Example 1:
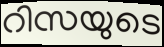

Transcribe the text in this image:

റിസയുടെ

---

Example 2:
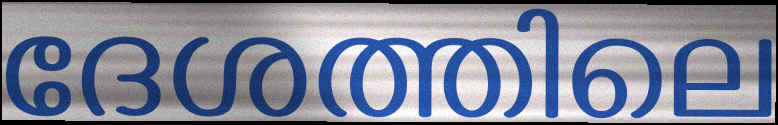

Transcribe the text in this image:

ദേശത്തിലെ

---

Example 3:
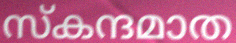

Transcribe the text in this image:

സ്കന്ദമാത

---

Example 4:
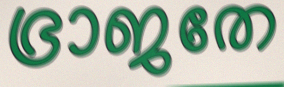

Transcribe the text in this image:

ഭ്രാജതേ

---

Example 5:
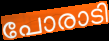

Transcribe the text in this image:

പോരാടി